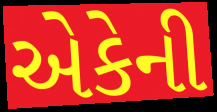
એકેની